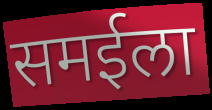
समईला